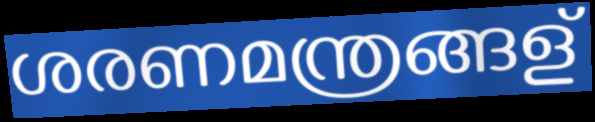
ശരണമന്ത്രങ്ങള്